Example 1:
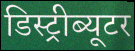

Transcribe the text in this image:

डिस्ट्रीब्यूटर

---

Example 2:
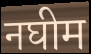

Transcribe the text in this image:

नघीम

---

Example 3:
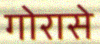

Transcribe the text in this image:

गोरासे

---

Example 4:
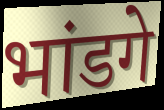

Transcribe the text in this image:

भांडगे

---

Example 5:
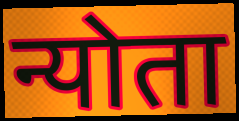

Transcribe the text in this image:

न्योता